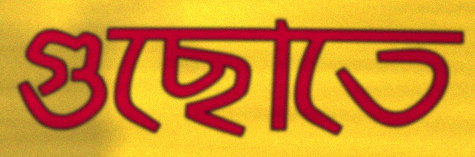
গুছোতে